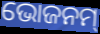
ଭୋଜନମ୍